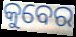
କୁବେର